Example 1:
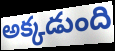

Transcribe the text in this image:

అక్కడుంది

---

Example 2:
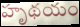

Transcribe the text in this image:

హృథయం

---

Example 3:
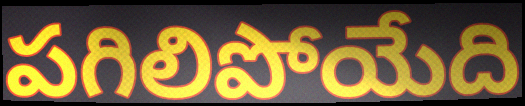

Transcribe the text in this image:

పగిలిపోయేది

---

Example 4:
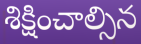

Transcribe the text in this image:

శిక్షించాల్సిన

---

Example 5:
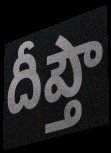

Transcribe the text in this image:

దీప్తౌ